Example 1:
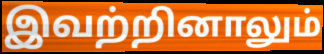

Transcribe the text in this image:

இவற்றினாலும்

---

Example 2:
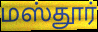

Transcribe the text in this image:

மஸ்தூர்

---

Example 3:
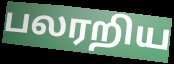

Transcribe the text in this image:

பலரறிய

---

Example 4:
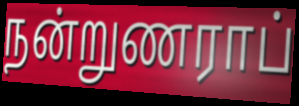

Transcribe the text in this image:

நன்றுணராப்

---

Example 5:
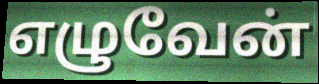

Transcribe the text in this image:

எழுவேன்